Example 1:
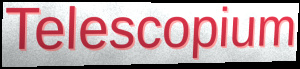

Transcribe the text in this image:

Telescopium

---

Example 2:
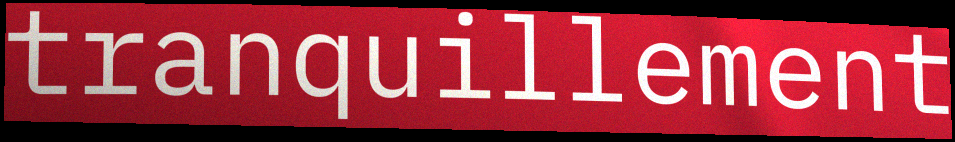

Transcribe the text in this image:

tranquillement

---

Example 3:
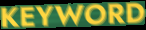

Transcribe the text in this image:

KEYWORD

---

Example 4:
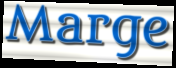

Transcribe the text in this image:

Marge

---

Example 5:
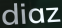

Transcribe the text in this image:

diaz